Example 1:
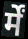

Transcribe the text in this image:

र्में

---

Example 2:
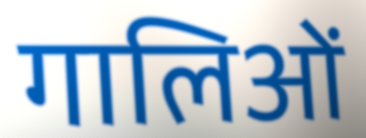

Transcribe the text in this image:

गालिओं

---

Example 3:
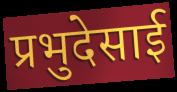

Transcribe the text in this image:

प्रभुदेसाई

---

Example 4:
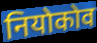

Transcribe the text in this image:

नियोकोव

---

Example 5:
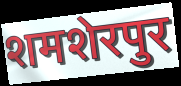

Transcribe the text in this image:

शमशेरपुर